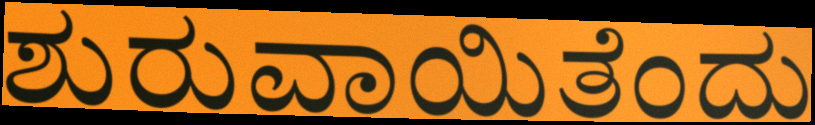
ಶುರುವಾಯಿತೆಂದು